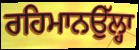
ਰਹਿਮਾਨਉੱਲ੍ਹਾ